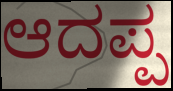
ಆದಪ್ಪ